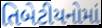
તિબેટીયનોમાં